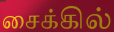
சைக்கில்